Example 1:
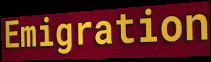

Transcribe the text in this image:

Emigration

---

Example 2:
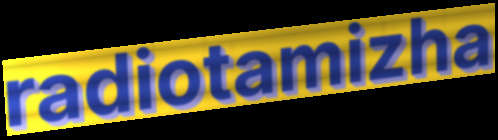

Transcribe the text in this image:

radiotamizha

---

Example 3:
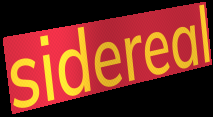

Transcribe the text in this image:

sidereal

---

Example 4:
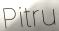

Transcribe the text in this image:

Pitru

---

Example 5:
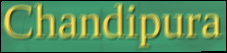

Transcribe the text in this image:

Chandipura